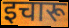
इचारू